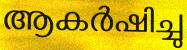
ആകർഷിച്ചു